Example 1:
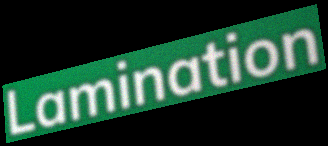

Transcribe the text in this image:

Lamination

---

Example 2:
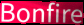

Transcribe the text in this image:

Bonfire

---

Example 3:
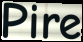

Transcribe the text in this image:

Pire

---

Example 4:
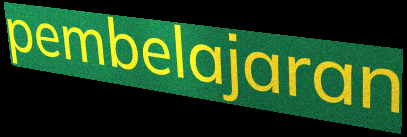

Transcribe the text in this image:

pembelajaran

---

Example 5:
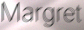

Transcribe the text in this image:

Margret